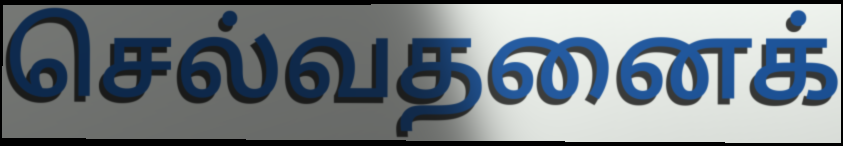
செல்வதனைக்